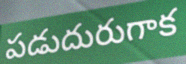
పడుదురుగాక